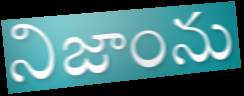
నిజాంను